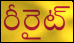
రీరైట్